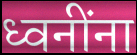
ध्वनींना